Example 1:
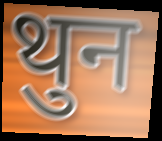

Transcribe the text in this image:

थुन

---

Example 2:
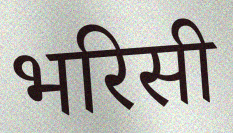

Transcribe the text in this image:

भरिसी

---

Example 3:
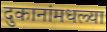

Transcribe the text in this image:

दुकानांमधल्या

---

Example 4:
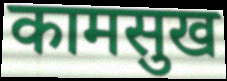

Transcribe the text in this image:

कामसुख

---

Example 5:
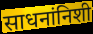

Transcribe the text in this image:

साधनांनिशी